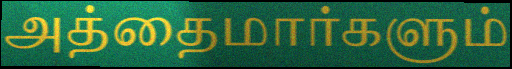
அத்தைமார்களும்